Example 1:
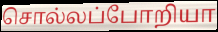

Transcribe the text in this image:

சொல்லப்போறியா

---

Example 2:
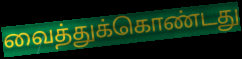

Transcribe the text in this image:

வைத்துக்கொண்டது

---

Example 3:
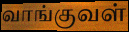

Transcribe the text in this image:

வாங்குவள்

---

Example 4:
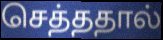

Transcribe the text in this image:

செத்ததால்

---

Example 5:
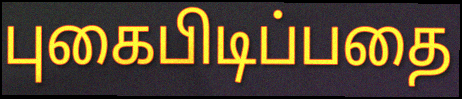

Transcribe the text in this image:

புகைபிடிப்பதை